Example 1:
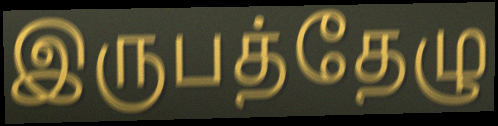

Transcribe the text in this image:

இருபத்தேழு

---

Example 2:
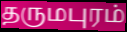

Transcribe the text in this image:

தருமபுரம்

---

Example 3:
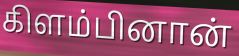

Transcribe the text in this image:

கிளம்பினான்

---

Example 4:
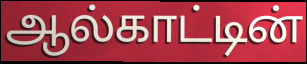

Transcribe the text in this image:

ஆல்காட்டின்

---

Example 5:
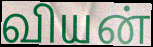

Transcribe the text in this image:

வியன்